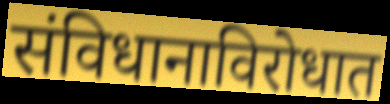
संविधानाविरोधात